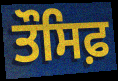
ਤੌਸਿਫ਼